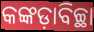
କଙ୍କଡ଼ାବିଚ୍ଛା